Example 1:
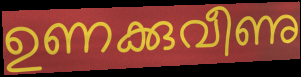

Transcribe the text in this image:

ഉണക്കുവീണു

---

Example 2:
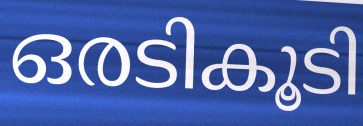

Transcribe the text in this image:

ഒരടികൂടി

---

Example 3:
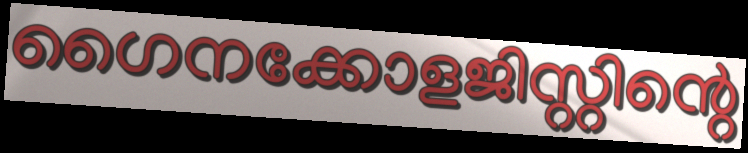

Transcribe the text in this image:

ഗൈനക്കോളജിസ്റ്റിന്റെ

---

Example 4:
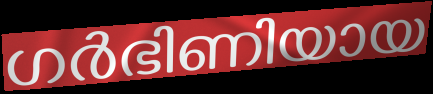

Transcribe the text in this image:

ഗർഭിണിയായ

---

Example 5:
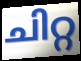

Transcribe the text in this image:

ചിറ്റ